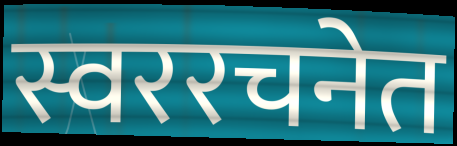
स्वररचनेत